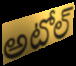
అటోల్